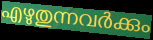
എഴുതുന്നവർക്കും